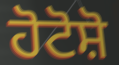
ਹੋਟੋਸ਼ੋ